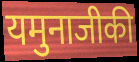
यमुनाजीकी